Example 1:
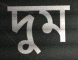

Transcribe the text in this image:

দুম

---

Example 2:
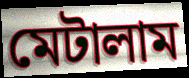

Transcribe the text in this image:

মেটালাম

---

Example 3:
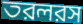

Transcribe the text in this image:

তরলরস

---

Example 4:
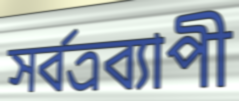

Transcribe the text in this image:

সর্বত্রব্যাপী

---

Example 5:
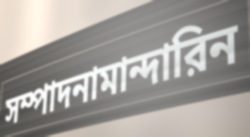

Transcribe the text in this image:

সম্পাদনামান্দারিন